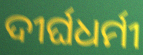
ଦୀର୍ଘଧର୍ମୀ